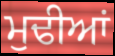
ਮੁਢੀਆਂ